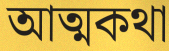
আত্মকথা